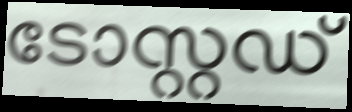
ടോസ്റ്റഡ്